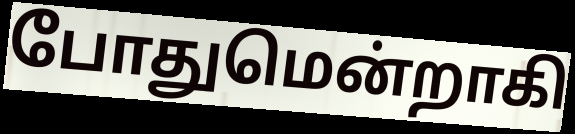
போதுமென்றாகி